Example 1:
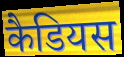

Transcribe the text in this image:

कैडियस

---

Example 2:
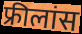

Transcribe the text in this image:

फ्रीलांस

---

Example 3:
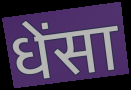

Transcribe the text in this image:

धेंसा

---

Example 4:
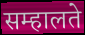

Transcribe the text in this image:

सम्हालते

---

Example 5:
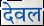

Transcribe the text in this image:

देवल